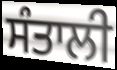
ਸੰਤਾਲੀ